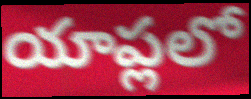
యాప్లలో